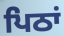
ਪਿਠਾਂ